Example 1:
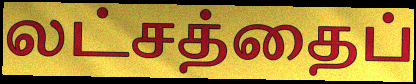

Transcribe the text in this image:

லட்சத்தைப்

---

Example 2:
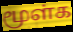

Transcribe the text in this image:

மூள்க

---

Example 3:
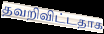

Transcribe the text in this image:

தவறிவிட்டதாக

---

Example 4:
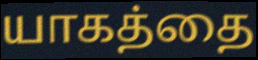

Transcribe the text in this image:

யாகத்தை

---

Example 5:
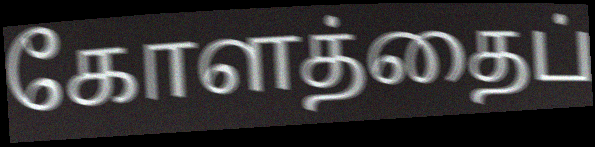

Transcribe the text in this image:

கோளத்தைப்